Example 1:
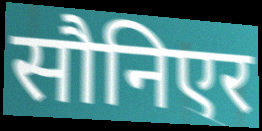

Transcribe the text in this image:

सौनिएर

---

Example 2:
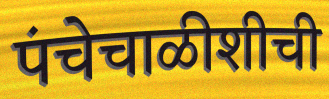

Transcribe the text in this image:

पंचेचाळीशीची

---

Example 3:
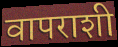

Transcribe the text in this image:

वापराशी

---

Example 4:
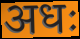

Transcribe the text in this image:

अधः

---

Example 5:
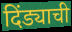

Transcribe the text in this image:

दिंड्याची